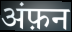
अंफ़न